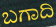
ಬಗಾದಿ